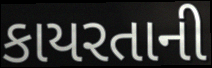
કાયરતાની